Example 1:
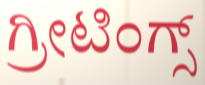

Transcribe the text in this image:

ಗ್ರೀಟಿಂಗ್ಸ್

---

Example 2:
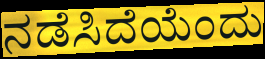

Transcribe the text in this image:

ನಡೆಸಿದೆಯೆಂದು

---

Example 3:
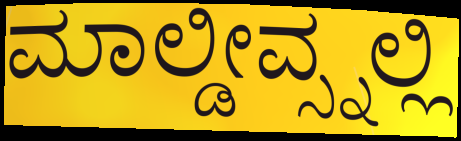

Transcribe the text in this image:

ಮಾಲ್ಡೀವ್ಸ್ನಲ್ಲಿ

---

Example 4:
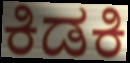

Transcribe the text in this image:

ಕಿಡಕಿ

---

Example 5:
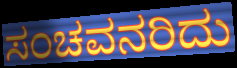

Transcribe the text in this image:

ಸಂಚವನರಿದು